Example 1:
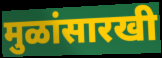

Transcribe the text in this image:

मुळांसारखी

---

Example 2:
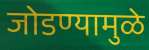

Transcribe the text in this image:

जोडण्यामुळे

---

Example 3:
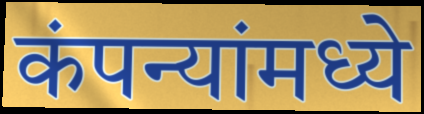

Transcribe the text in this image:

कंपन्यांमध्ये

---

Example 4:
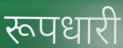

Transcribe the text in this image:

रूपधारी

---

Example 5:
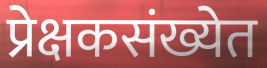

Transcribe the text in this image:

प्रेक्षकसंख्येत